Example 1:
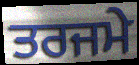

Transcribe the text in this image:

ਤਰਜਮੇ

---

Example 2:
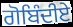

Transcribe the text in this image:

ਗੋਬਿੰਦੀਏ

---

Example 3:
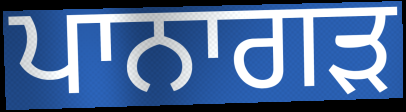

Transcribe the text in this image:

ਪਾਨਾਗੜ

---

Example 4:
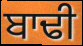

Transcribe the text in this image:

ਬਾਢੀ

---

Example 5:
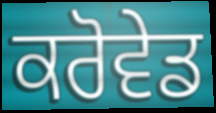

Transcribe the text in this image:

ਕਰੋਵੇਡ